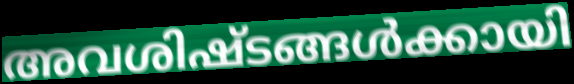
അവശിഷ്ടങ്ങൾക്കായി